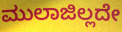
ಮುಲಾಜಿಲ್ಲದೇ